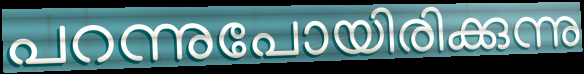
പറന്നുപോയിരിക്കുന്നു